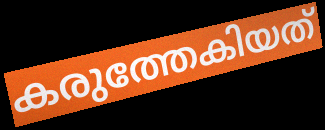
കരുത്തേകിയത്